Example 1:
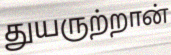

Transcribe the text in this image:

துயருற்றான்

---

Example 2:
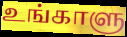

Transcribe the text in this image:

உங்காளு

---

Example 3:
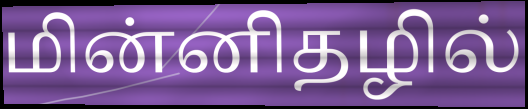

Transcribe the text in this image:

மின்னிதழில்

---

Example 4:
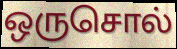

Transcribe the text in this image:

ஒருசொல்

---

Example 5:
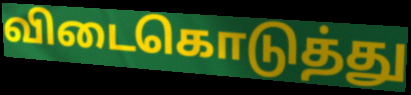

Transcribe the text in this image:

விடைகொடுத்து